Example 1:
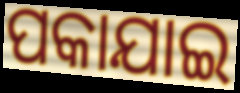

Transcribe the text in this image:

ପକାଯାଇ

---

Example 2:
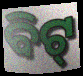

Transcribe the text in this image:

ବିଟ୍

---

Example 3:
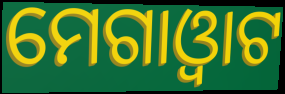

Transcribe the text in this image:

ମେଗାଓ୍ଵାଟ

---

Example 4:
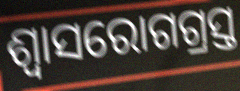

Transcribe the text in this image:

ଶ୍ୱାସରୋଗଗ୍ରସ୍ତ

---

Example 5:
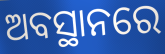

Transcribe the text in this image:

ଅବସ୍ଥାନରେ